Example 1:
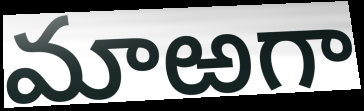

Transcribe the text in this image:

మాఱగా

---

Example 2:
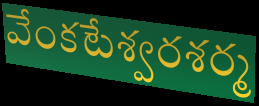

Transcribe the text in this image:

వేంకటేశ్వరశర్మ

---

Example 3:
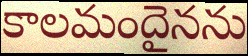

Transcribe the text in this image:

కాలమందైనను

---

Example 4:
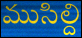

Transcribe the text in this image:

ముసిల్ది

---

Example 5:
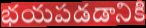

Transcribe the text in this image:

భయపడడానికి